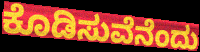
ಕೊಡಿಸುವೆನೆಂದು